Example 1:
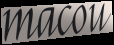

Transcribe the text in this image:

macou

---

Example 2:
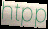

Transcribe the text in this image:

htpp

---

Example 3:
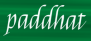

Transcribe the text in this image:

paddhat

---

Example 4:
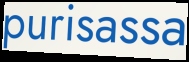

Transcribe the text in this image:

purisassa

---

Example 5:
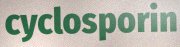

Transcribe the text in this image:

cyclosporin